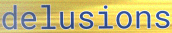
delusions